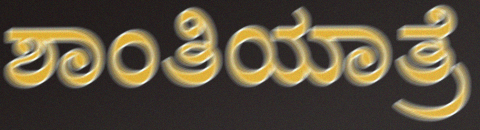
ಶಾಂತಿಯಾತ್ರೆ